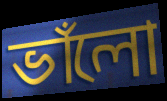
ভাঁলো